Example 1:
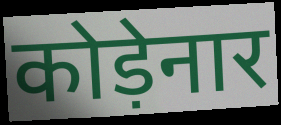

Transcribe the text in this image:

कोड़ेनार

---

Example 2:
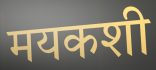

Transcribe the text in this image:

मयकशी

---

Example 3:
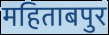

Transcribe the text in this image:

महिताबपुर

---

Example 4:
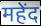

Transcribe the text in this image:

महेंद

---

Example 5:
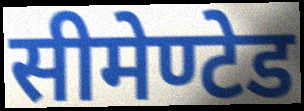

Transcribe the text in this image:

सीमेण्टेड